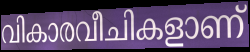
വികാരവീചികളാണ്